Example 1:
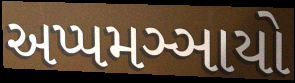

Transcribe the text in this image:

અપ્પમઞ્ઞાયો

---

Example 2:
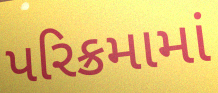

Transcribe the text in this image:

પરિક્રમામાં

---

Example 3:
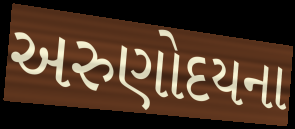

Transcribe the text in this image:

અરુણોદયના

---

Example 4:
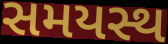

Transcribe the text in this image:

સમયસ્થ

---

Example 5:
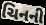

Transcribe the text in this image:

ચિનની